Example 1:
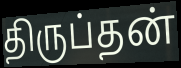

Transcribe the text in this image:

திருப்தன்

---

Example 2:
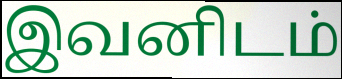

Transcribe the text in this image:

இவனிடம்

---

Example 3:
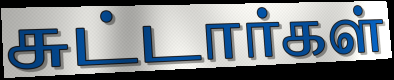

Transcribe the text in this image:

சுட்டார்கள்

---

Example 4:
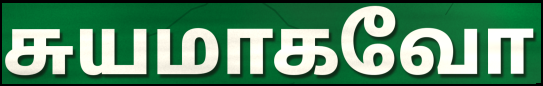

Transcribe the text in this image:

சுயமாகவோ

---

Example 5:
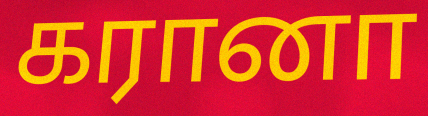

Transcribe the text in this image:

கரானா